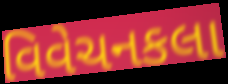
વિવેચનકલા